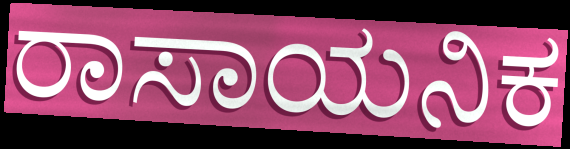
ರಾಸಾಯನಿಕ